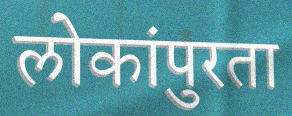
लोकांपुरता